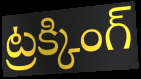
ట్రక్కింగ్